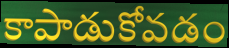
కాపాడుకోవడం